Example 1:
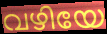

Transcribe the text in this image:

വഴിയേ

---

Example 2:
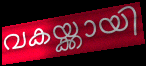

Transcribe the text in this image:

വകയ്ക്കായി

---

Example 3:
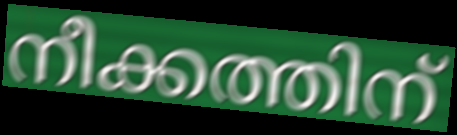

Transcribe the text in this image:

നീക്കത്തിന്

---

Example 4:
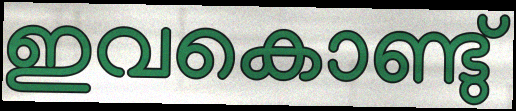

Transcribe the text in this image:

ഇവകൊണ്ടു്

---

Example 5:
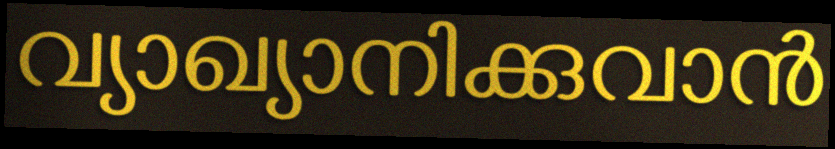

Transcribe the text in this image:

വ്യാഖ്യാനിക്കുവാൻ